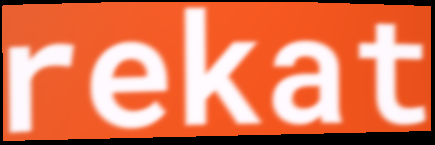
rekat